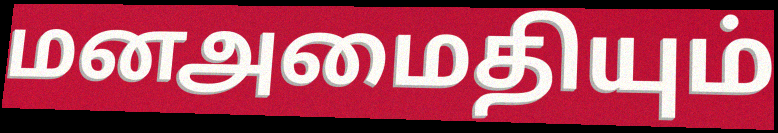
மனஅமைதியும்